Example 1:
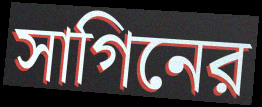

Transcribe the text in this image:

সাগিনের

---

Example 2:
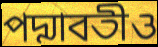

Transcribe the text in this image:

পদ্মাবতীও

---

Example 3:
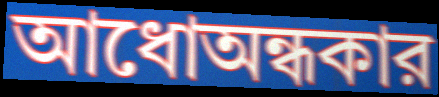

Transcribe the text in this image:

আধোঅন্ধকার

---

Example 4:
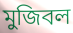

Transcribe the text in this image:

মুজিবল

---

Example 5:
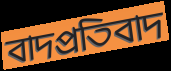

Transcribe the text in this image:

বাদপ্রতিবাদ